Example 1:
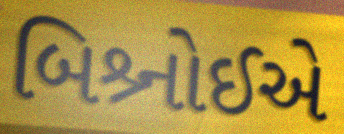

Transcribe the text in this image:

બિશ્ર્નોઈએ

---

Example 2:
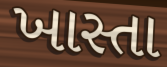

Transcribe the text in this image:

ખાસ્તા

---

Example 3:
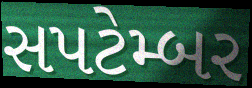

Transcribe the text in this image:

સપટેમ્બર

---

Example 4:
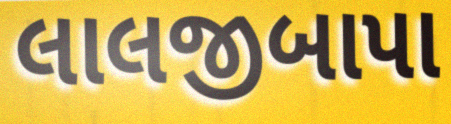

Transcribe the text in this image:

લાલજીબાપા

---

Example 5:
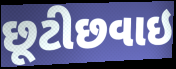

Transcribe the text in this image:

છૂટીછવાઇ